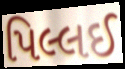
પિલ્લઈ